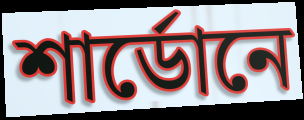
শার্ডোনে